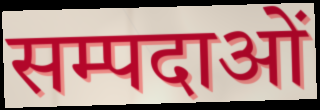
सम्पदाओं